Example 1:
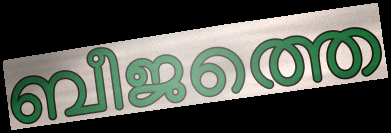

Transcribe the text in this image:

ബീജത്തെ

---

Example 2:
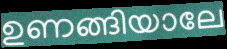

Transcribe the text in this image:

ഉണങ്ങിയാലേ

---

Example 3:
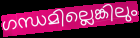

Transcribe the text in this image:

ഗന്ധമില്ലെങ്കിലും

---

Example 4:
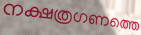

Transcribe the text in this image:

നക്ഷത്രഗണത്തെ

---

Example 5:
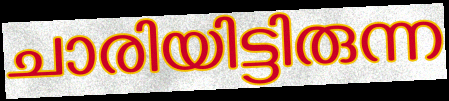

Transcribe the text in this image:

ചാരിയിട്ടിരുന്ന